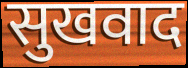
सुखवाद